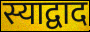
स्याद्वाद